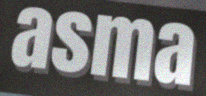
asma